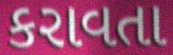
કરાવતા